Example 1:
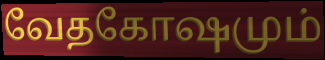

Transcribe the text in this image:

வேதகோஷமும்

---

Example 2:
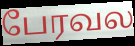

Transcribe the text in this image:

பேரவல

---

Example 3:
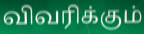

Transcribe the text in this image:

விவரிக்கும்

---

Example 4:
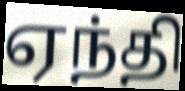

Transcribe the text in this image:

ஏந்தி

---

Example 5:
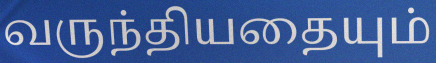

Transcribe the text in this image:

வருந்தியதையும்